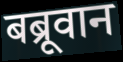
बब्रूवान